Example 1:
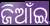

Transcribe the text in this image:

ଜିଆଁଇ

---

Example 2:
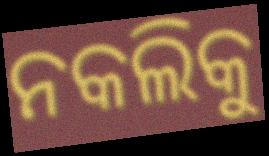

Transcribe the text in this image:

ନକଲିକୁ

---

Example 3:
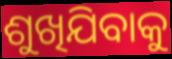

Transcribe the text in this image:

ଶୁଖିଯିବାକୁ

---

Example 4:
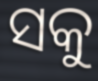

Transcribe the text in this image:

ସକୁ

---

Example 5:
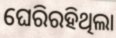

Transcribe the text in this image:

ଘେରିରହିଥିଲା